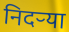
निदऱ्या